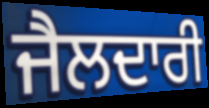
ਜੈਲਦਾਰੀ